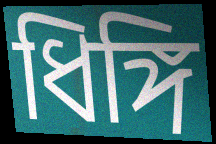
ধিঙ্গি